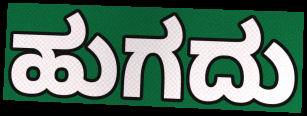
ಹುಗದು